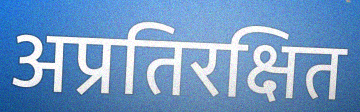
अप्रतिरक्षित